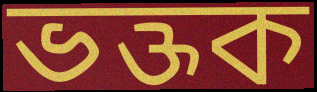
ভক্তক